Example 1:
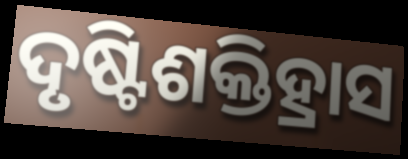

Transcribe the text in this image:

ଦୃଷ୍ଟିଶକ୍ତିହ୍ରାସ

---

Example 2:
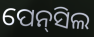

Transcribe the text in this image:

ପେନ୍‍ସିଲ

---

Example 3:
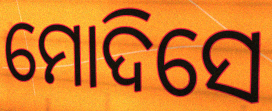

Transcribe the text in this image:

ମୋଦିସେ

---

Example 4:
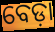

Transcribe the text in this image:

ବେଡ଼ା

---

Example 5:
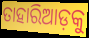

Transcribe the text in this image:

ତାହାରିଆଡ଼କୁ